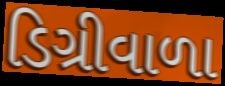
ડિગ્રીવાળા